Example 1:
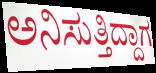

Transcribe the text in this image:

ಅನಿಸುತ್ತಿದ್ದಾಗ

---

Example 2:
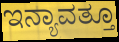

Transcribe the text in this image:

ಇನ್ಯಾವತ್ತೂ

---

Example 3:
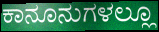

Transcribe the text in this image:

ಕಾನೂನುಗಳಲ್ಲೂ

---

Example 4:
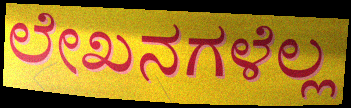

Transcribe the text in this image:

ಲೇಖನಗಳೆಲ್ಲ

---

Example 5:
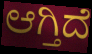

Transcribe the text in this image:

ಆಗ್ತಿದೆ